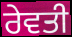
ਰੇਵਤੀ